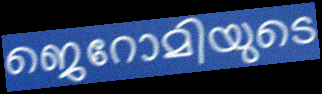
ജെറോമിയുടെ